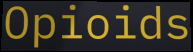
Opioids